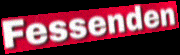
Fessenden